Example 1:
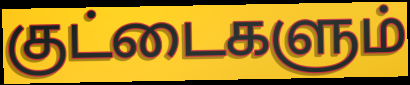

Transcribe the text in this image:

குட்டைகளும்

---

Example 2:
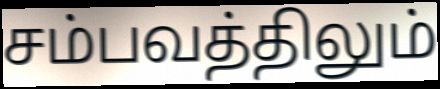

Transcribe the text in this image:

சம்பவத்திலும்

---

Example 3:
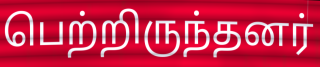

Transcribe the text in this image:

பெற்றிருந்தனர்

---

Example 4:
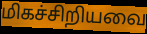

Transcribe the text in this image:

மிகச்சிறியவை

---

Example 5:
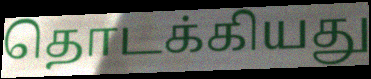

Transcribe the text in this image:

தொடக்கியது